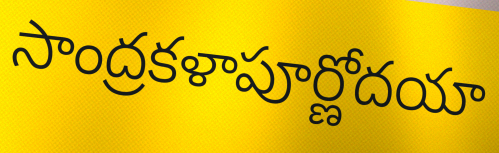
సాంద్రకళాపూర్ణోదయా